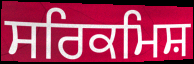
ਸਰਿਕਮਿਸ਼